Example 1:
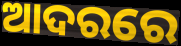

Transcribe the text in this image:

ଆଦରରେ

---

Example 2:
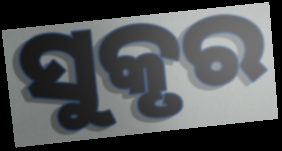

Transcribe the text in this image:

ସୁକୃର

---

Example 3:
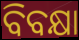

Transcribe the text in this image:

ବିବକ୍ଷା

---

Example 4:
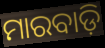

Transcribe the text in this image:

ମାରବାଡ଼ି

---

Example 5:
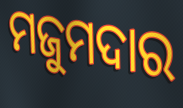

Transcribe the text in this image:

ମଜୁମଦାର